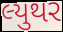
લ્યુથર